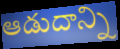
ఆడుదాన్ని